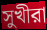
সুখীরা